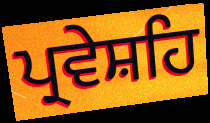
ਪ੍ਰਵੇਸ਼ਹਿ